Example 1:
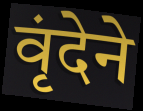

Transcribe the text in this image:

वृंदेने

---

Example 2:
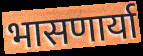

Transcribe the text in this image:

भासणार्या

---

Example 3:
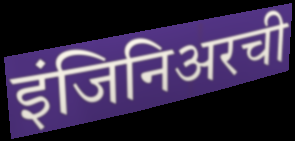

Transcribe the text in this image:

इंजिनिअरची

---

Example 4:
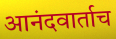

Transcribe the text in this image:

आनंदवार्ताच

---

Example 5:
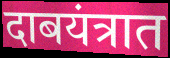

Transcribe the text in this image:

दाबयंत्रात